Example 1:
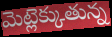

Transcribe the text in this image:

మెట్లెక్కుతున్న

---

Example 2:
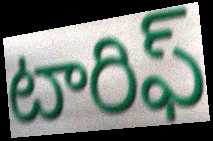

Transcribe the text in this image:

టారిఫ్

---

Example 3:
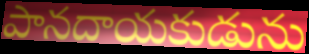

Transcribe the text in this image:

పానదాయకుడును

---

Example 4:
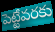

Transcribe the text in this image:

పెట్టేవరకు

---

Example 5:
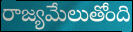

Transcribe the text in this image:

రాజ్యమేలుతోంది